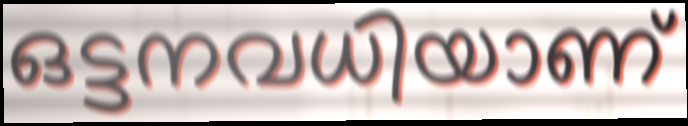
ഒട്ടനവധിയാണ്